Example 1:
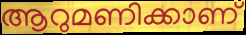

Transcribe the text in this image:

ആറുമണിക്കാണ്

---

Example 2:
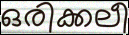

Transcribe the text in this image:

ഒരിക്കലീ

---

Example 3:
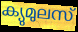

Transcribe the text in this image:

ക്യുമുലസ്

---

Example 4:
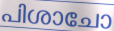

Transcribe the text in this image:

പിശാചോ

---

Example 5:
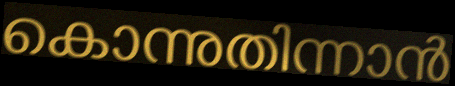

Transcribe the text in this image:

കൊന്നുതിന്നാൻ